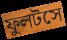
ফুলটসে